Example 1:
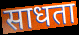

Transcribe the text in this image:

साधता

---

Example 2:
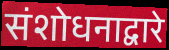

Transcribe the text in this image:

संशोधनाद्वारे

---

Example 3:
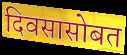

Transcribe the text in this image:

दिवसासोबत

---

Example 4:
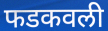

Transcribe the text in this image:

फडकवली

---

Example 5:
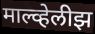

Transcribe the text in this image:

माल्व्हेलीझ